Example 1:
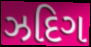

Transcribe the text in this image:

ઝદિગ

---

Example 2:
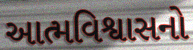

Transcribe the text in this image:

આત્મવિશ્વાસનો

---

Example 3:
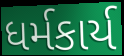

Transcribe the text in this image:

ધર્મકાર્ય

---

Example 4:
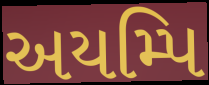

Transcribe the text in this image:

અયમ્પિ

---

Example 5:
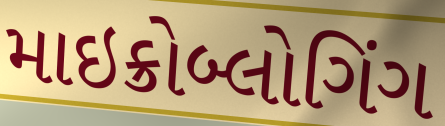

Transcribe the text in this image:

માઇક્રોબ્લોગિંગ